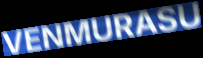
VENMURASU